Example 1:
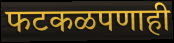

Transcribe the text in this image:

फटकळपणाही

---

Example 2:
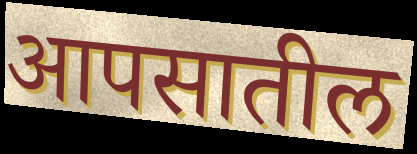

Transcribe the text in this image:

आपसातील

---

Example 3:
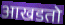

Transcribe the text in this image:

आखडतो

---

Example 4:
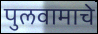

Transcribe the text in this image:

पुलवामाचे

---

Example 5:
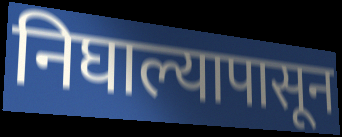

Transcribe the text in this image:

निघाल्यापासून